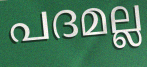
പദമല്ല